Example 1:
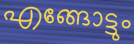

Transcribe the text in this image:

എങ്ങോട്ടും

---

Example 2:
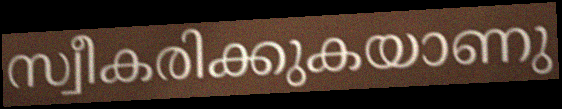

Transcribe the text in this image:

സ്വീകരിക്കുകയാണു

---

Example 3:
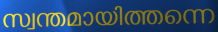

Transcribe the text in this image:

സ്വന്തമായിത്തന്നെ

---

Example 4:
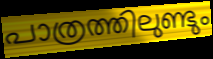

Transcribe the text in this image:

പാത്രത്തിലുണ്ടും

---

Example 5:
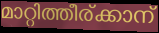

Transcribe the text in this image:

മാറ്റിത്തീര്ക്കാന്